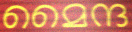
മൈന്ദ